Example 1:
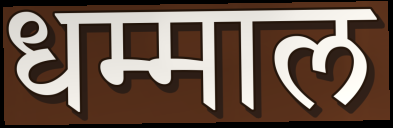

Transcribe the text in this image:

धम्माल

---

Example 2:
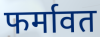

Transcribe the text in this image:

फर्मावत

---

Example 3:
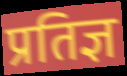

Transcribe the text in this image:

प्रतिज्ञ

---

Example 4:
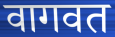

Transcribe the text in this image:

वागवत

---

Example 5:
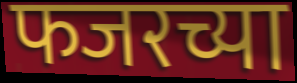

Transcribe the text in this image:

फजरच्या